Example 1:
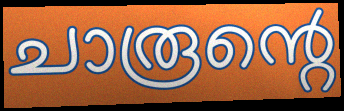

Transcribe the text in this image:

ചാരൂന്റെ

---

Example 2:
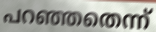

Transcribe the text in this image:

പറഞ്ഞതെന്ന്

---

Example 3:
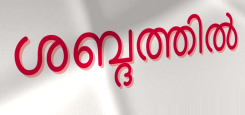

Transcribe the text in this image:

ശബ്ദത്തിൽ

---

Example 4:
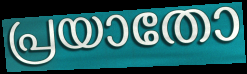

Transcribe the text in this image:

പ്രയാതോ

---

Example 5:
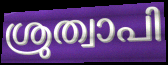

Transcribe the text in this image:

ശ്രുത്വാപി